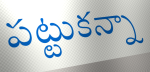
పట్టుకన్నా